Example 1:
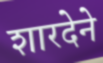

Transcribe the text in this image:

शारदेने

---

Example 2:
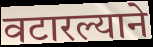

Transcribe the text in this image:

वटारल्याने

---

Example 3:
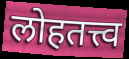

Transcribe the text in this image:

लोहतत्त्व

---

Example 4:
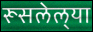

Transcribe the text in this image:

रूसलेल्या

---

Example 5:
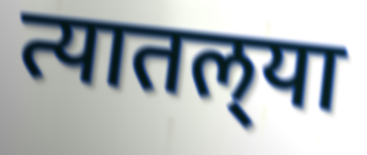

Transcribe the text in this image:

त्यातल्या